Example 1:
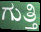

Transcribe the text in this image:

ಗುತ್ತಿ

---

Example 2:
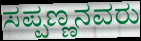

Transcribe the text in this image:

ಸಪ್ಪಣ್ಣನವರು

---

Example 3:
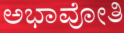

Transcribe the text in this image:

ಅಭಾವೋತಿ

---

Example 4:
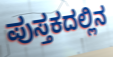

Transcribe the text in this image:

ಪುಸ್ತಕದಲ್ಲಿನ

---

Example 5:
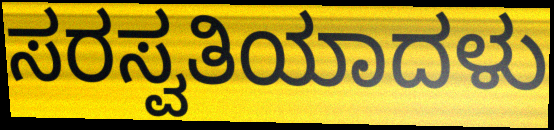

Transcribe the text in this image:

ಸರಸ್ವತಿಯಾದಳು